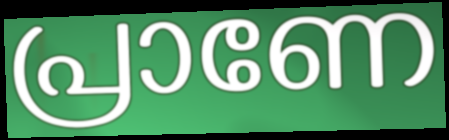
പ്രാണേ